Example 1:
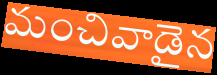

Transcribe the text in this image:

మంచివాడైన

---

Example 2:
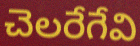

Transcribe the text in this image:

చెలరేగేవి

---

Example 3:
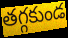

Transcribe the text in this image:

తగ్గకుండ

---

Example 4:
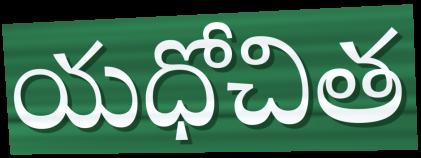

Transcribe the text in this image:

యధోచిత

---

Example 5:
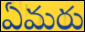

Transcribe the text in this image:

ఏమరు